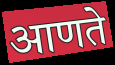
आणते